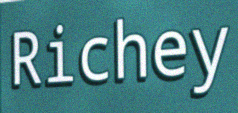
Richey